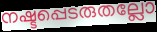
നഷ്ടപ്പെടരുതല്ലോ